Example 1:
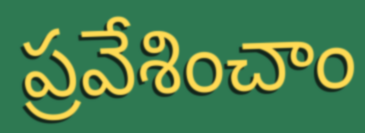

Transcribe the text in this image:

ప్రవేశించాం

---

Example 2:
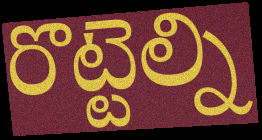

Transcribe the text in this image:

రొట్టెల్ని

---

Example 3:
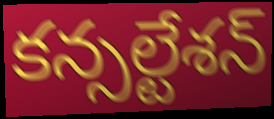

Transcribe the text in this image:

కన్సల్టేశన్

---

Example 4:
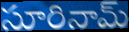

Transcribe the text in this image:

సూరినామ్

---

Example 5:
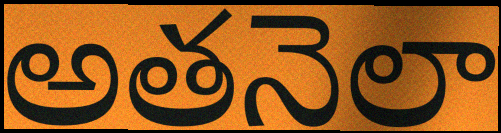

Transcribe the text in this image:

అతనెలా